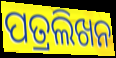
ପତ୍ରଲିଖନ